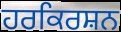
ਹਰਕਿਰਸ਼ਨ